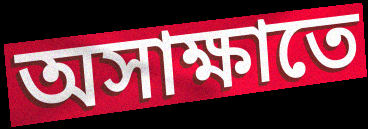
অসাক্ষাতে